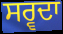
ਸਰ੍ਵਦਾ